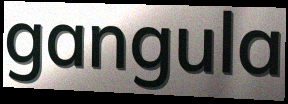
gangula